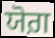
ਯੋਗ਼